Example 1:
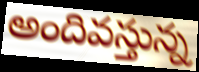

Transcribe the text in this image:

అందివస్తున్న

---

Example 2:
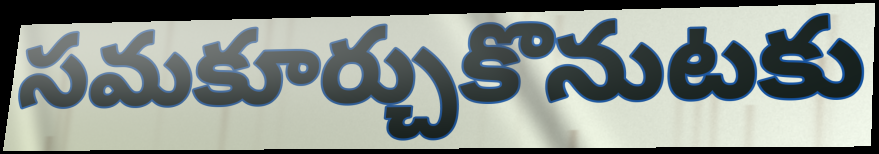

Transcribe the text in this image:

సమకూర్చుకొనుటకు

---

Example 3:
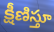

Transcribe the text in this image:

క్షీణిస్తూ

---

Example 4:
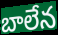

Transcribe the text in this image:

బాలేన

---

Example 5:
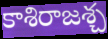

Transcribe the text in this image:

కాశిరాజశ్చ